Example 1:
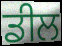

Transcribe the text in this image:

ਡੀਲ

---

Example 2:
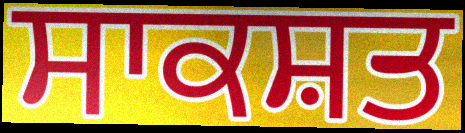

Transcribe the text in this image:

ਸਾਕਸ਼ਤ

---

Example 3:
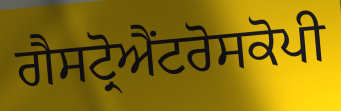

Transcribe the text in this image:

ਗੈਸਟ੍ਰੋਐਂਟਰੋਸਕੋਪੀ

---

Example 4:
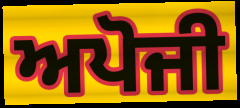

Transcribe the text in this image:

ਅਪੋਜੀ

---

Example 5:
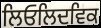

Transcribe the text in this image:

ਲਿਓਲਿਦਵਿਕ